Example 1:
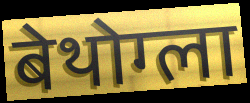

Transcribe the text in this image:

बेथोग्ला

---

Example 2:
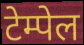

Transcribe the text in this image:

टेम्पेल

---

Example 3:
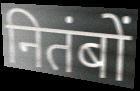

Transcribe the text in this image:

नितंबों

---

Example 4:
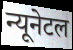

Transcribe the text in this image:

न्यूनेटल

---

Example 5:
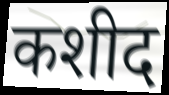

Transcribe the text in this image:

कशीद